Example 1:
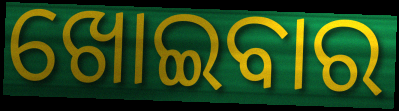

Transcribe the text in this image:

ଖୋଇବାର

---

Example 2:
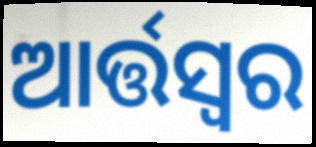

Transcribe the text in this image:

ଆର୍ତ୍ତସ୍ୱର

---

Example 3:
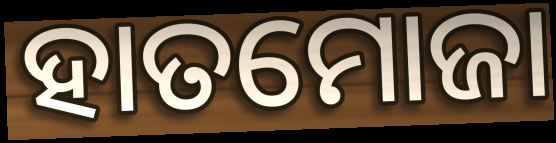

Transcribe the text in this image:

ହାତମୋଜା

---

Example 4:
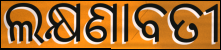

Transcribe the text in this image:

ଲକ୍ଷଣାବତୀ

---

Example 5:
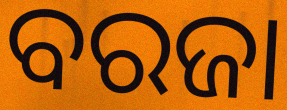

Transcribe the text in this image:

ବରଜା